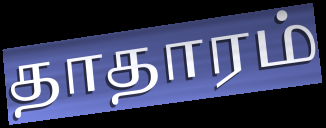
தாதாரம்